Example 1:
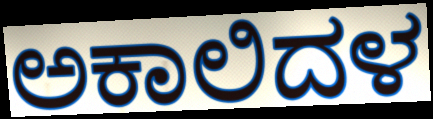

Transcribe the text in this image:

ಅಕಾಲಿದಳ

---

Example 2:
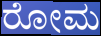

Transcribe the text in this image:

ರೋಮ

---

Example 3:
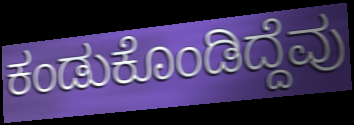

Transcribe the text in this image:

ಕಂಡುಕೊಂಡಿದ್ದೆವು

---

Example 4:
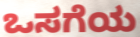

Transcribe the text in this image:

ಒಸಗೆಯ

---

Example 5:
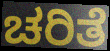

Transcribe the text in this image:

ಚರಿತೆ